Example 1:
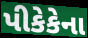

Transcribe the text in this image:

પીકેકેના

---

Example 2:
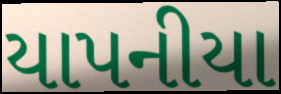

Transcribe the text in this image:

યાપનીયા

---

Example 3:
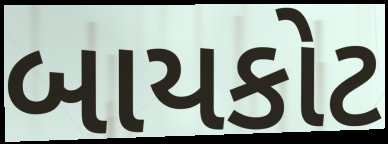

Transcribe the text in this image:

બાયકોટ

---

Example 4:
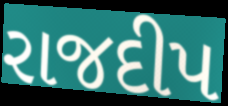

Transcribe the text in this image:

રાજદીપ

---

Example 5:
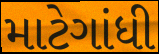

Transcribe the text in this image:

માટેગાંધી